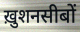
ख़ुशनसीबों